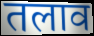
तलाव